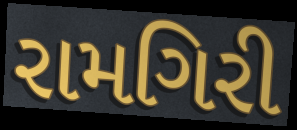
રામગિરી